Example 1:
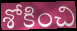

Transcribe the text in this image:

శోకించి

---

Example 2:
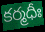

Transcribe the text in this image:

కర్మధీః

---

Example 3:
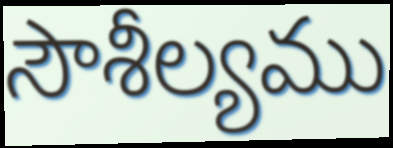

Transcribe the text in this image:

సౌశీల్యము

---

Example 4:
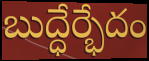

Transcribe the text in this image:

బుద్ధేర్భేదం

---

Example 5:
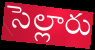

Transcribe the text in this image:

సెల్లారు